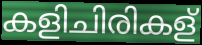
കളിചിരികള്